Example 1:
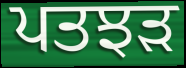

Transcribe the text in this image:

ਪਤਝੜ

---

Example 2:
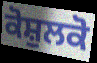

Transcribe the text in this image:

ਕੋਸ਼ੁਲਕੋ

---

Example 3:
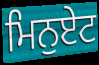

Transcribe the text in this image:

ਮਿਨੁਏਟ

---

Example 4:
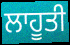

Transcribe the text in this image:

ਲਾਹੂਤੀ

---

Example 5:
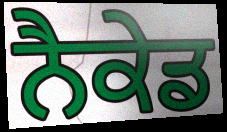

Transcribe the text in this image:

ਨੈਕੇਡ